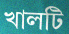
খালটি